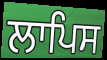
ਲਾਪਿਸ